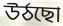
উঠছো